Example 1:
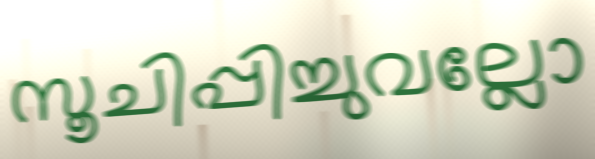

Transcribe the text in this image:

സൂചിപ്പിച്ചുവല്ലോ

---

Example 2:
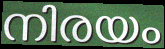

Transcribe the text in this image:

നിരയം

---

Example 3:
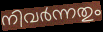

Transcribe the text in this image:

നിവർന്നതും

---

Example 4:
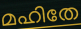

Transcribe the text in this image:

മഹിതേ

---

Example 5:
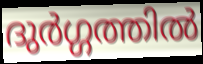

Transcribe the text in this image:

ദുർഗ്ഗത്തിൽ